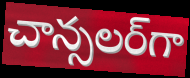
చాన్సలర్‌గా